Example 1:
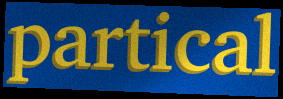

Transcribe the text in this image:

partical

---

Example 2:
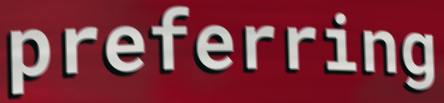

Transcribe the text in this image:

preferring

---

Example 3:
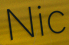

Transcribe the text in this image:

Nic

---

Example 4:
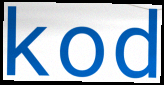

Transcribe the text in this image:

kod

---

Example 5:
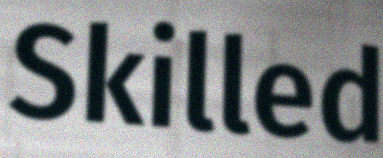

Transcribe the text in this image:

Skilled